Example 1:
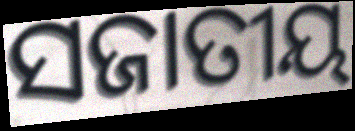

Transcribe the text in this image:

ସଜାତୀୟ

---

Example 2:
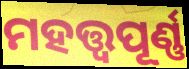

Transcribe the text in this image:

ମହତ୍ତ୍ଵପୂର୍ଣ୍ଣ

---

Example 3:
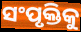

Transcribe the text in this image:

ସଂପୃକ୍ତିକୁ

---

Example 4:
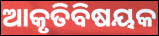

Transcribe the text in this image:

ଆକୃତିବିଷୟକ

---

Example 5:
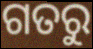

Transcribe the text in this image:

ଗତରୁ